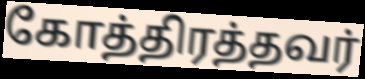
கோத்திரத்தவர்